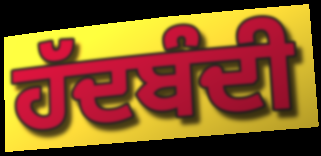
ਹੱਦਬੰਦੀ